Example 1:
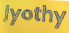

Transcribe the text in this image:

Jyothy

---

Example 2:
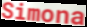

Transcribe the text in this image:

Simona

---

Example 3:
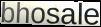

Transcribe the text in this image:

bhosale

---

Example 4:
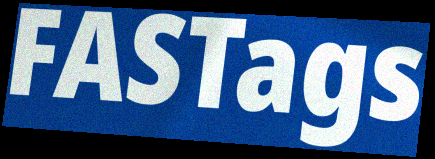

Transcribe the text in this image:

FASTags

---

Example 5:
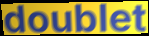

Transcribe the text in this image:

doublet